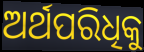
ଅର୍ଥପରିଧିକୁ